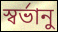
স্বর্ভানু